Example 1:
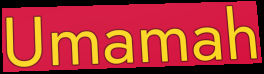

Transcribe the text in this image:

Umamah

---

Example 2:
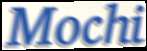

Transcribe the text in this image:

Mochi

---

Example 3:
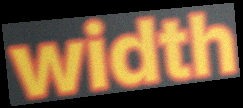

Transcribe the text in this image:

width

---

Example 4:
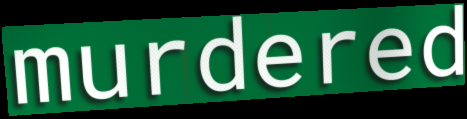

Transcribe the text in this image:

murdered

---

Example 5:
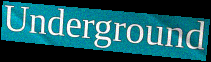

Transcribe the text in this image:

Underground